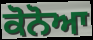
ਕੋਨੋਆ